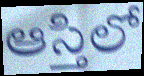
ఆస్తిలో